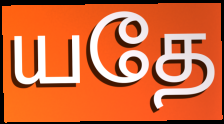
யதே